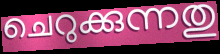
ചെറുക്കുന്നതു